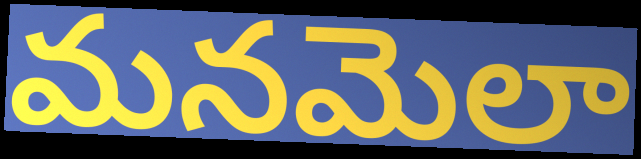
మనమెలా